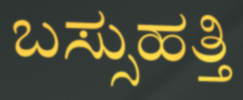
ಬಸ್ಸುಹತ್ತಿ